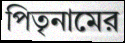
পিতৃনামের